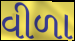
વીળા